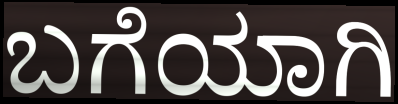
ಬಗೆಯಾಗಿ